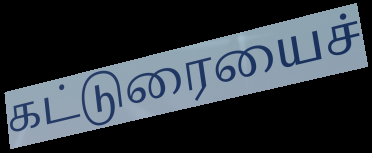
கட்டுரையைச்